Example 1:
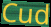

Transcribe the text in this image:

Cud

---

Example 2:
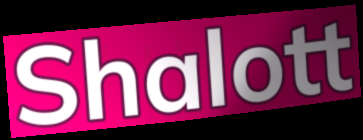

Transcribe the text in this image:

Shalott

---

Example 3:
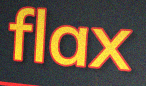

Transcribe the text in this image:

flax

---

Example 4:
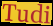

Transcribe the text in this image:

Tudi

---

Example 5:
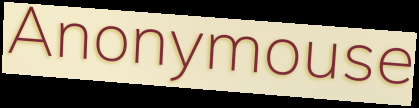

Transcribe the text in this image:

Anonymouse